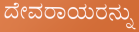
ದೇವರಾಯರನ್ನು